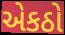
એકઠો